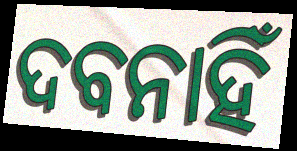
ଦବନାହିଁ